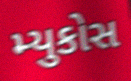
મ્યુકોસ